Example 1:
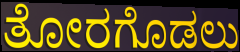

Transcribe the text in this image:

ತೋರಗೊಡಲು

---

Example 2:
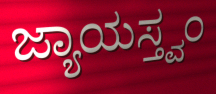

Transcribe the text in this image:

ಜ್ಯಾಯಸ್ತ್ವಂ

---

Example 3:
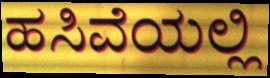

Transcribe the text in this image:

ಹಸಿವೆಯಲ್ಲಿ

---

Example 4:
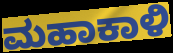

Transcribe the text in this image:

ಮಹಾಕಾಳಿ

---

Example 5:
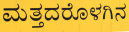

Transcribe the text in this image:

ಮತ್ತದರೊಳಗಿನ